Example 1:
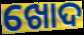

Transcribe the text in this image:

ଖୋଦ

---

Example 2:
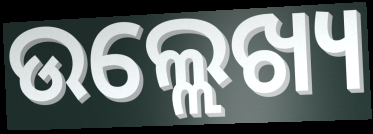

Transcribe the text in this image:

ଉଲ୍ଲେଖ୍ୟ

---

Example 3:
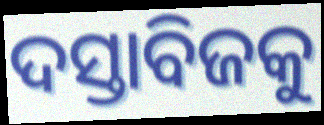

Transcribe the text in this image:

ଦସ୍ତାବିଜକୁ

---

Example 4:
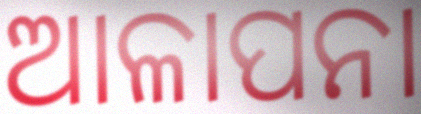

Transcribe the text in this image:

ଆଳାପନା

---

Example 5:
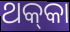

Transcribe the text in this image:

ଥକ୍‍କା